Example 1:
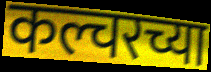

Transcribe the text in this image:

कल्चरच्या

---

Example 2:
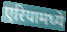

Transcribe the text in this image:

एरियामध्ये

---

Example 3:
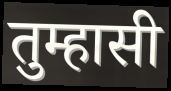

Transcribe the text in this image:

तुम्हासी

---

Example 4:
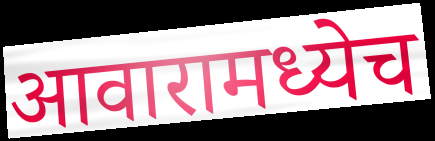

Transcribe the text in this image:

आवारामध्येच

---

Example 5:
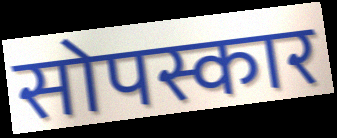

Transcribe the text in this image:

सोपस्कार